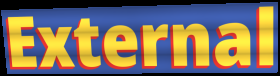
External